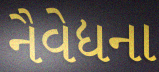
નૈવેદ્યના